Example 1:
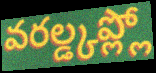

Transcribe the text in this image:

వరల్డ్కప్ల్లో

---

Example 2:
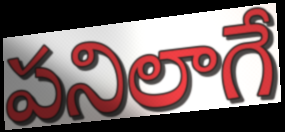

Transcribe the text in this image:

పనిలాగే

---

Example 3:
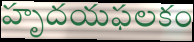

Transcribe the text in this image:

హృదయఫలకం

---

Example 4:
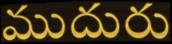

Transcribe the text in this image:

ముదురు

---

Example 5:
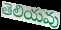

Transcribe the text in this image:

తెలియవు